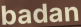
badan